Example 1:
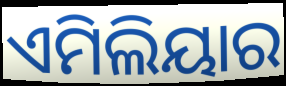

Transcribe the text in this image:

ଏମିଲିୟାର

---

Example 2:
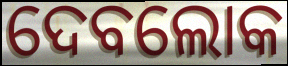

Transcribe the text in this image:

ଦେବଲୋକ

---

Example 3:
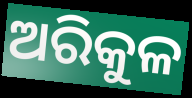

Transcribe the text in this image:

ଅରିକୁଳ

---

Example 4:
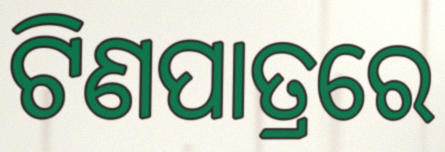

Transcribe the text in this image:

ଟିଣପାତ୍ରରେ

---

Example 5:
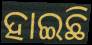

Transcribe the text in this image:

ହାଇଛି